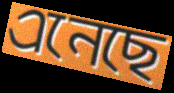
এনেছে